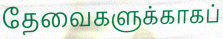
தேவைகளுக்காகப்